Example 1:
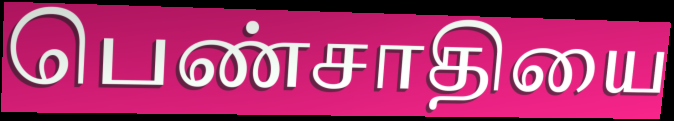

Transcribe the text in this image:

பெண்சாதியை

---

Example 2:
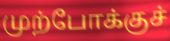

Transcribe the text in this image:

முற்போக்குச்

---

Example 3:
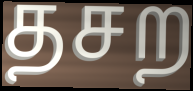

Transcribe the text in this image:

தசற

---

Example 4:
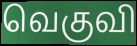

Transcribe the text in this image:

வெகுவி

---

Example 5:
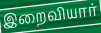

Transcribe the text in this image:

இறைவியார்